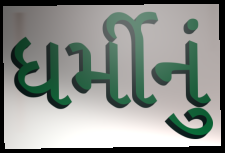
ધર્મીનું